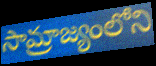
సామ్రాజ్యంలోని